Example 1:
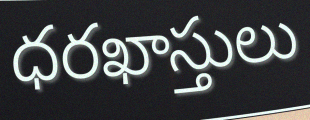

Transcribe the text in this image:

ధరఖాస్తులు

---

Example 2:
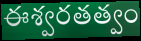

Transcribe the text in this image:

ఈశ్వరతత్వం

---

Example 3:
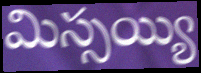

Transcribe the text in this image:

మిస్సయ్యి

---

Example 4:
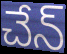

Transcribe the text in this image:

చేన్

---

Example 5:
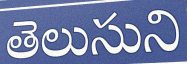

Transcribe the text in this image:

తెలుసుని